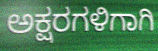
ಅಕ್ಷರಗಳಿಗಾಗಿ